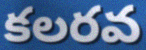
కలరవ